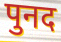
पुनद